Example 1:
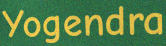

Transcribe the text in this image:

Yogendra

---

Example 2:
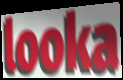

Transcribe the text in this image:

looka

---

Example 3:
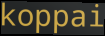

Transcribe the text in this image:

koppai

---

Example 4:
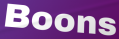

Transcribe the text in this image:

Boons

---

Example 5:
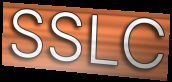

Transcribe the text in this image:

SSLC